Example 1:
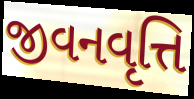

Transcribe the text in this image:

જીવનવૃત્તિ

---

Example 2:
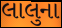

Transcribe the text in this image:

લાલુના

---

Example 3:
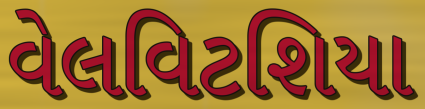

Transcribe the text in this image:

વેલવિટશિયા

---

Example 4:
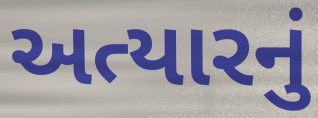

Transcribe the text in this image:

અત્યારનું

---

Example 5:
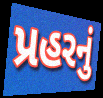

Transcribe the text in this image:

પ્રહરનું